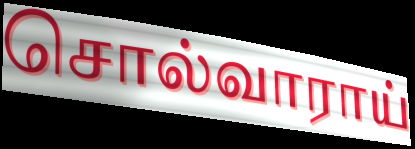
சொல்வாராய்